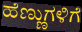
ಹೆಣ್ಣುಗಳಿಗೆ